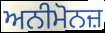
ਅਨੀਮੋਨਜ਼